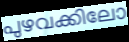
പുഴവക്കിലോ